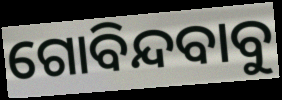
ଗୋବିନ୍ଦବାବୁ